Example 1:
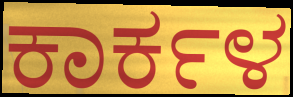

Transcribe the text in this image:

ಕಾರ್ಕಳ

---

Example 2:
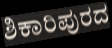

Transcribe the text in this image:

ಶಿಕಾರಿಪುರದ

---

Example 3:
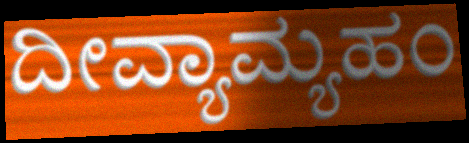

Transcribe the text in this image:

ದೀವ್ಯಾಮ್ಯಹಂ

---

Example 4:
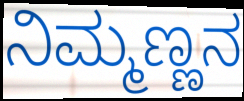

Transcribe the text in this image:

ನಿಮ್ಮಣ್ಣನ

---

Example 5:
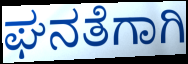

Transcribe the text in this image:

ಘನತೆಗಾಗಿ